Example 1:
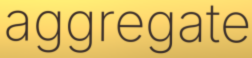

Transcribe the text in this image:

aggregate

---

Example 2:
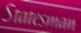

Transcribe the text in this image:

Statesman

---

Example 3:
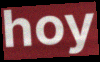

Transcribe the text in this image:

hoy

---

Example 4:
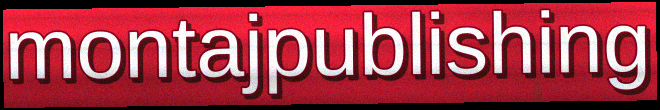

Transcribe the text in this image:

montajpublishing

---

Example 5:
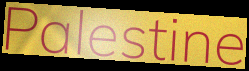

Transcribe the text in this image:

Palestine